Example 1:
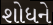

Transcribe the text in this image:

શોધને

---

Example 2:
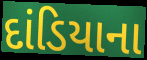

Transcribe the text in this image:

દાંડિયાના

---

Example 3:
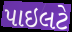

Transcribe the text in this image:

પાઇલટે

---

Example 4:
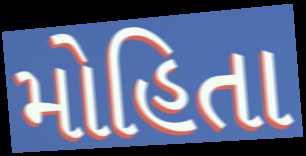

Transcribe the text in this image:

મોહિતા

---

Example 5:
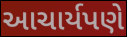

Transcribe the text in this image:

આચાર્યપણે